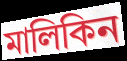
মালিকিন